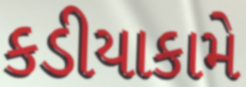
કડીયાકામે